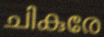
ചികുരേ